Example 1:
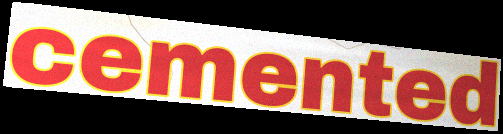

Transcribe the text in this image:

cemented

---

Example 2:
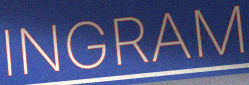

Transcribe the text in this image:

INGRAM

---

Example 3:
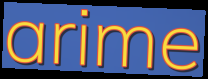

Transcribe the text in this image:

arime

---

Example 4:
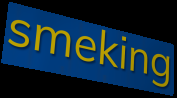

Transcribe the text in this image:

smeking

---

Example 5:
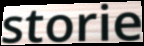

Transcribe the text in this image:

storie